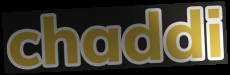
chaddi